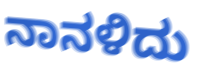
ನಾನಳಿದು